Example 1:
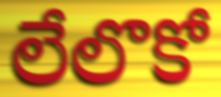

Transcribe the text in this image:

లేలొకో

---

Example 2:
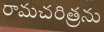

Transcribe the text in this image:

రామచరిత్రను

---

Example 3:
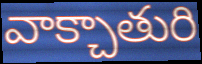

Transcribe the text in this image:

వాక్చాతురి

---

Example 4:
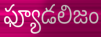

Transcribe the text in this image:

ఫ్యూడలిజం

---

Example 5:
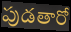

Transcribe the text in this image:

పుడతారో